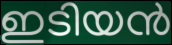
ഇടിയൻ